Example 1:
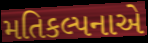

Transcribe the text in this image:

મતિકલ્પનાએ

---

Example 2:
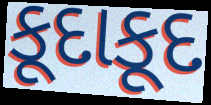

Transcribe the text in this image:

કૂદાકૂદ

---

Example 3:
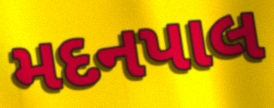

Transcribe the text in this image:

મદનપાલ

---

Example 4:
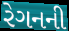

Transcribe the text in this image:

રેગનની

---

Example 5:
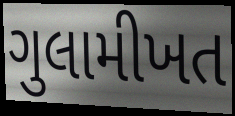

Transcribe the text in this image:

ગુલામીખત